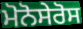
ਮੋਨੋਸੇਰੋਸ